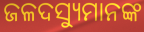
ଜଳଦସ୍ୟୁମାନଙ୍କ